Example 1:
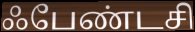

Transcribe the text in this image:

ஃபேண்டசி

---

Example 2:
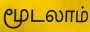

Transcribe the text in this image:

மூடலாம்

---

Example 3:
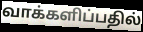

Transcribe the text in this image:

வாக்களிப்பதில்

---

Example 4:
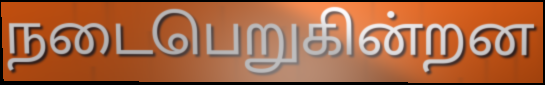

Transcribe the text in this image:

நடைபெறுகின்றன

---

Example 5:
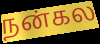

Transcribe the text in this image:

நன்கல